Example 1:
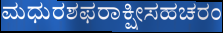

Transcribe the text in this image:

ಮಧುರಶಫರಾಕ್ಷೀಸಹಚರಂ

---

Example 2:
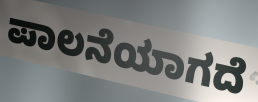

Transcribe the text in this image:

ಪಾಲನೆಯಾಗದೆ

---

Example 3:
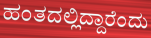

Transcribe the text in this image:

ಹಂತದಲ್ಲಿದ್ದಾರೆಂದು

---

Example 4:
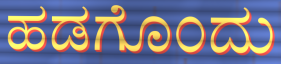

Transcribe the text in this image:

ಹಡಗೊಂದು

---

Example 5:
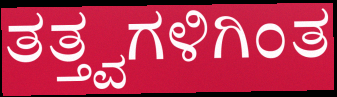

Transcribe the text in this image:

ತತ್ತ್ವಗಳಿಗಿಂತ